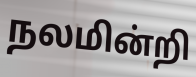
நலமின்றி